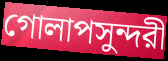
গোলাপসুন্দরী